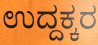
ಉದ್ದಕ್ಕರ